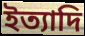
ইত্যাদি